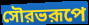
সৌরভরূপে